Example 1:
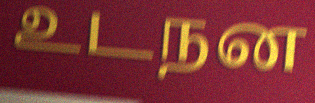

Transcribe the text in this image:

உடநன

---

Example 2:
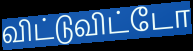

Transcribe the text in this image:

விட்டுவிட்டோ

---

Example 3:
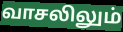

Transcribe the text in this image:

வாசலிலும்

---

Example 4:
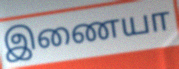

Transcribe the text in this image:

இணையா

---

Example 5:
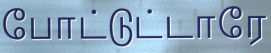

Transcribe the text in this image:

போட்டுட்டாரே